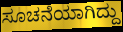
ಸೂಚನೆಯಾಗಿದ್ದು